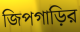
জিপগাড়ির